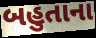
બહુતાના